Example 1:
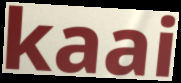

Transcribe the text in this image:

kaai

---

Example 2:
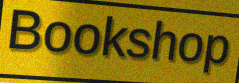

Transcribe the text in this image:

Bookshop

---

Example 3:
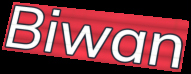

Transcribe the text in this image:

Biwan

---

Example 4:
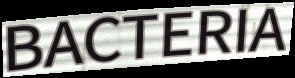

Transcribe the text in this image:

BACTERIA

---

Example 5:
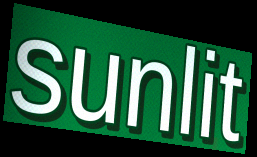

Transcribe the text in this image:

sunlit